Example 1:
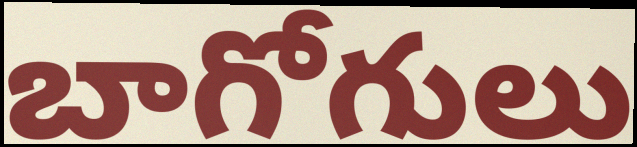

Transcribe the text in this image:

బాగోగులు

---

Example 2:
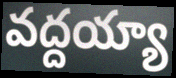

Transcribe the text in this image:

వద్దయ్యా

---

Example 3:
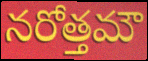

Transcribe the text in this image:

నరోత్తమౌ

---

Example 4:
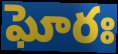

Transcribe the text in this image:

ఘోరః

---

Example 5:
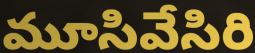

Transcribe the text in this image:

మూసివేసిరి